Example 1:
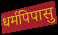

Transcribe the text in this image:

धर्मपिपासु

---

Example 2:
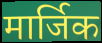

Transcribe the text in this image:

मार्जिक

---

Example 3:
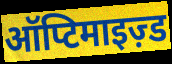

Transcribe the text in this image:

ऑप्टिमाइज़्ड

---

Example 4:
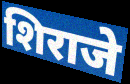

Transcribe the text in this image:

शिराजे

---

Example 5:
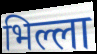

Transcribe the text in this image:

भिल्ला